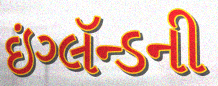
ઇંગ્લૅન્ડની